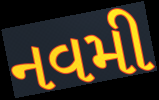
નવમી